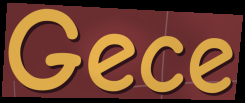
Gece